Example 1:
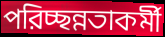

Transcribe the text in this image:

পরিচ্ছন্নতাকর্মী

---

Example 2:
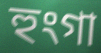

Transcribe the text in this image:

হুংগা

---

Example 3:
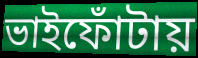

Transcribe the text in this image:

ভাইফোঁটায়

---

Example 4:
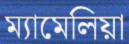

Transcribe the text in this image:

ম্যামেলিয়া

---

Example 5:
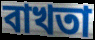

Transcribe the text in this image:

বাখতা